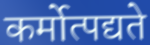
कर्मोत्पद्यते